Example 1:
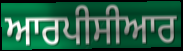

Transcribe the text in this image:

ਆਰਪੀਸੀਆਰ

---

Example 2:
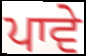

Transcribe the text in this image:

ਪਾਵੇ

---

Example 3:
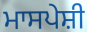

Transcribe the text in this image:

ਮਾਸਪੇਸ਼ੀ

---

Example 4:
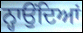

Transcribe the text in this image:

ਨ੍ਹਾਉਂਦਿਆਂ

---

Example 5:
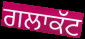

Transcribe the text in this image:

ਗਲਾਕੱਟ